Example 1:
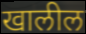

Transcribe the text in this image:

खालील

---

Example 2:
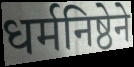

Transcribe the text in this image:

धर्मनिष्ठेने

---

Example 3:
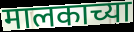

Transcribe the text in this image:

मालकाच्या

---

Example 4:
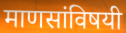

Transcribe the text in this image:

माणसांविषयी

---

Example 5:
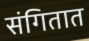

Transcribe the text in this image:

संगितात